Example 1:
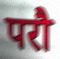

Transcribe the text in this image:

परौ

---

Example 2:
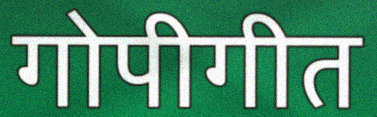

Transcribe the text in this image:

गोपीगीत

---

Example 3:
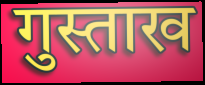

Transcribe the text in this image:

गुस्ताख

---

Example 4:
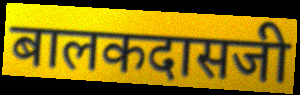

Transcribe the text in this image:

बालकदासजी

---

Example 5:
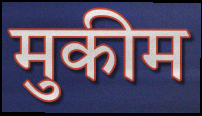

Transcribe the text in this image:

मुकीम